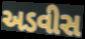
અડવીસ